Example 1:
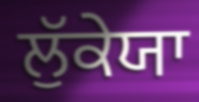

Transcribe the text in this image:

ਲੁੱਕੇਯਾ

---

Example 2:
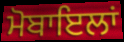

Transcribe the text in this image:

ਮੋਬਾਇਲਾਂ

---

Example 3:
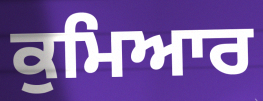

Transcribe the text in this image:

ਕੁਮਿਆਰ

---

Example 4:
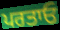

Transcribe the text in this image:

ਪਰਤਾਓ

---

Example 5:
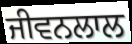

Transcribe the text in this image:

ਜੀਵਨਲਾਲ